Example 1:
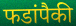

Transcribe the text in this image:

फडांपैकी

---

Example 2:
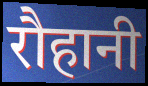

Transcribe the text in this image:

रौहानी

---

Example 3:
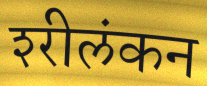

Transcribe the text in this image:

श्रीलंकन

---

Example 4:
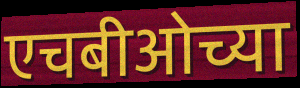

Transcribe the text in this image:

एचबीओच्या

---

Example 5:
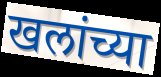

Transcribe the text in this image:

खलांच्या